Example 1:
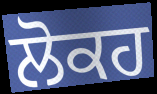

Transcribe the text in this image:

ਲੋਕਹ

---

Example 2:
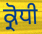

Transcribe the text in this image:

ਕ੍ਰੋਧੀ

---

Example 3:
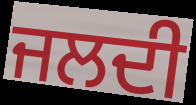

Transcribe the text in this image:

ਜਲਦੀ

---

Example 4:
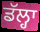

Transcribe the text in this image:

ਡੱਲ੍ਹਾ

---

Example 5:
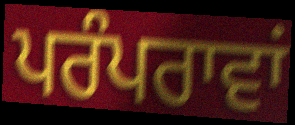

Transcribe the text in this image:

ਪਰੰਪਰਾਵਾਂ